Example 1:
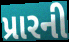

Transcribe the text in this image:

પ્રારની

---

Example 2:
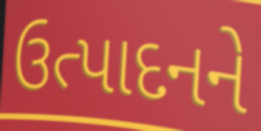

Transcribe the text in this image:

ઉત્પાદનને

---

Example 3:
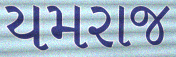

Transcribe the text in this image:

યમરાજ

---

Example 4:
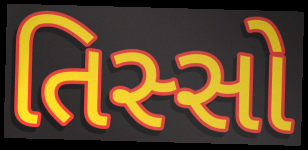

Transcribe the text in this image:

તિસ્સો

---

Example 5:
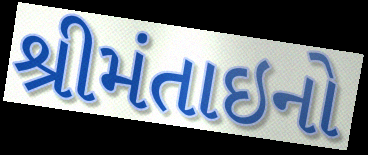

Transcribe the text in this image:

શ્રીમંતાઇનો